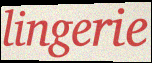
lingerie